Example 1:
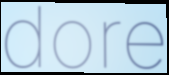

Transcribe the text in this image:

dore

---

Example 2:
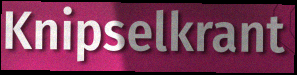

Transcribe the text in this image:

Knipselkrant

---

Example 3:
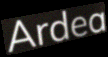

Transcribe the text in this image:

Ardea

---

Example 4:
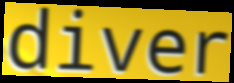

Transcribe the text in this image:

diver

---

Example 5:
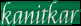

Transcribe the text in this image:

kanitkar